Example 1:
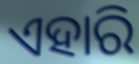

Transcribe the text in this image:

ଏହାରି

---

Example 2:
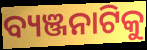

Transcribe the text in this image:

ବ୍ୟଞ୍ଜନାଟିକୁ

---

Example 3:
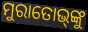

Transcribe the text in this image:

ମୁରାତୋଭ୍‌ଙ୍କୁ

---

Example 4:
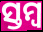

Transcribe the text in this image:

ସ୍ତମ୍ବ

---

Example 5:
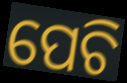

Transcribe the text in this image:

ପେଚି